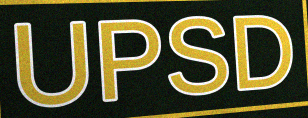
UPSD